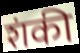
शंकी